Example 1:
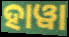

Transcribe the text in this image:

ହାୱା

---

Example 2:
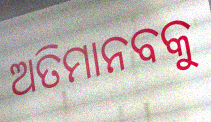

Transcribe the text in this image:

ଅତିମାନବକୁ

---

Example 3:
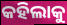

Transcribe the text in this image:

କହିଲାକୁ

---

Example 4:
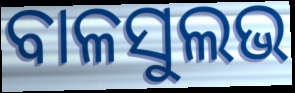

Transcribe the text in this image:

ବାଳସୁଲଭ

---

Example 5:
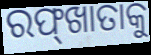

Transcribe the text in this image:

ରଫ୍‌ଖାତାକୁ